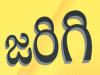
జరిగి